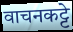
वाचनकट्टे